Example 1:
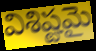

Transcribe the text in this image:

విశిష్టమై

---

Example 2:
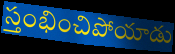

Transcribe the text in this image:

స్తంభించిపోయాడు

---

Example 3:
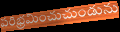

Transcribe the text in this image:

పరిభ్రమించుచుండును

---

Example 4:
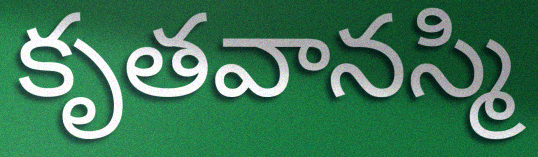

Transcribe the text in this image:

కృతవానస్మి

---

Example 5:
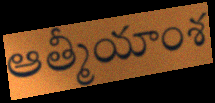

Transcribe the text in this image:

ఆత్మీయాంశ